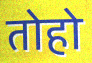
तोहो